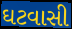
ઘટવાસી